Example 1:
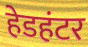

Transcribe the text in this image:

हेडहंटर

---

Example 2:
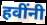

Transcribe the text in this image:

हवींनी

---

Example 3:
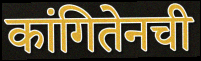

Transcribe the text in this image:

कांगितेनची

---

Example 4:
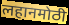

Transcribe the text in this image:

लहानमोठी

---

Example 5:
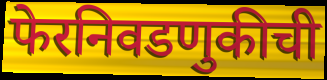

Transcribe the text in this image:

फेरनिवडणुकीची